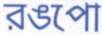
রঙপো